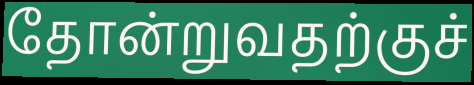
தோன்றுவதற்குச்